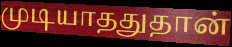
முடியாததுதான்